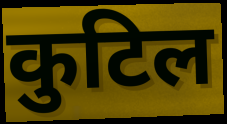
कुटिल